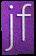
jf